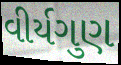
વીર્યગુણ